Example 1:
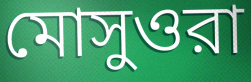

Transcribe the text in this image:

মোসুওরা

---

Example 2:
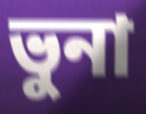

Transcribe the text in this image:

ভুনা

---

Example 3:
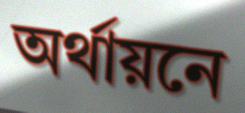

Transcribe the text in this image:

অর্থায়নে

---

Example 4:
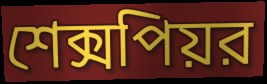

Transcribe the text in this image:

শেক্সপিয়র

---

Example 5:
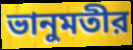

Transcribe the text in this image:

ভানুমতীর